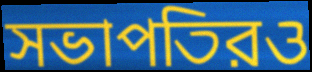
সভাপতিরও